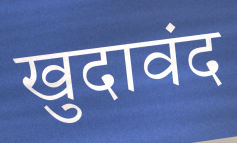
खुदावंद